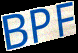
BPF